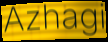
Azhagi